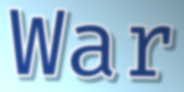
War